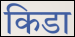
किडा